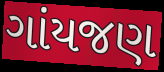
ગાંયજણ